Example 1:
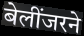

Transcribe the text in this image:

बेलींजरने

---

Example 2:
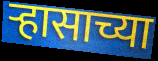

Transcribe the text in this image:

ऱ्हासाच्या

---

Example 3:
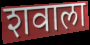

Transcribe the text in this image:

शवाला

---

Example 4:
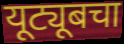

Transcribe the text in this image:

यूट्यूबचा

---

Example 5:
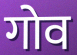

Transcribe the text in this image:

गोव